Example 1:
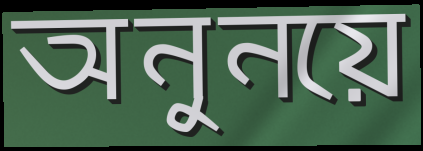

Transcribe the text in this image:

অনুনয়ে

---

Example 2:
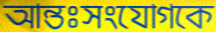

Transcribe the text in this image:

আন্তঃসংযোগকে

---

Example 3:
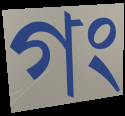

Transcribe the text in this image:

গং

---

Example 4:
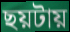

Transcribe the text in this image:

ছয়টায়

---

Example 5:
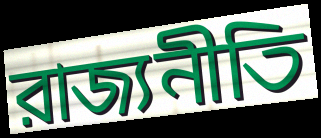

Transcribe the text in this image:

রাজ্যনীতি